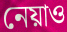
নেয়াও